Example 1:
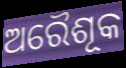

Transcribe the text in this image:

ଅରୈଶୂକ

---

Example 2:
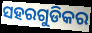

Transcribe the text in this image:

ସହରଗୁଡିକର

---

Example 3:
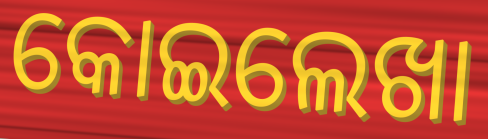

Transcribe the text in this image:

କୋଇଲେଖା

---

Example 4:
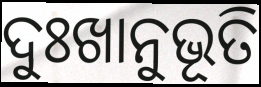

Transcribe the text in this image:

ଦୁଃଖାନୁଭୂତି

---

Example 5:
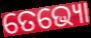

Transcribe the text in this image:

ତେଭ୍ୟୋ